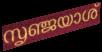
സൃഞ്ജയാശ്